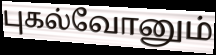
புகல்வோனும்